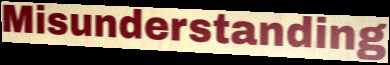
Misunderstanding